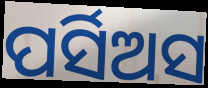
ପର୍ସିଅସ